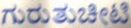
ಗುರುತುಚೀಟಿ